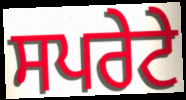
ਸਪਰੇਟੇ